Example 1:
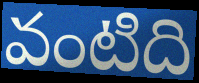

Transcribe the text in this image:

వంటిది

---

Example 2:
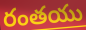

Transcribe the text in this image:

రంతయు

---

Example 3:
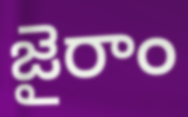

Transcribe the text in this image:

జైరాం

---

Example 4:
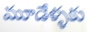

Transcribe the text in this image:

మూడేళ్ళకు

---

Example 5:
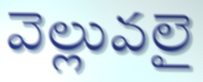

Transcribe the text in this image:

వెల్లువలై